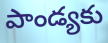
పాండ్యకు